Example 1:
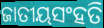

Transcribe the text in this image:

ଜାତୀୟସଂହତି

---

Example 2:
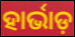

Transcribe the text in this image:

ହାର୍ଭାଡ଼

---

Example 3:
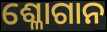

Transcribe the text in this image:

ଶ୍ଳୋଗାନ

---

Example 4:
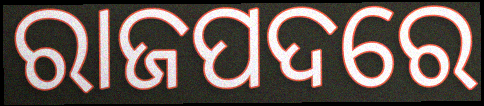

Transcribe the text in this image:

ରାଜପଦରେ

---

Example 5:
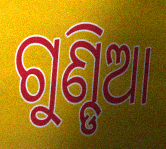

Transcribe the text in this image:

ଗୁଣ୍ଡିଆ